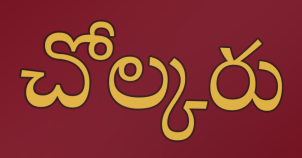
చోల్కరు